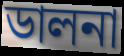
ডালনা